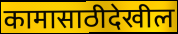
कामासाठीदेखील